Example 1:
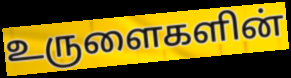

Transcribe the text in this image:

உருளைகளின்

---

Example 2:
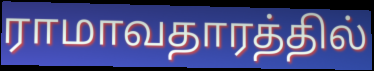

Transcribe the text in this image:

ராமாவதாரத்தில்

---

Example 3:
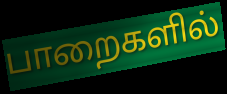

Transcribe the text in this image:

பாறைகளில்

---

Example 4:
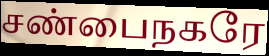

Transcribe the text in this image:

சண்பைநகரே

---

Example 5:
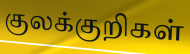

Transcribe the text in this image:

குலக்குறிகள்